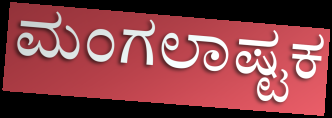
ಮಂಗಲಾಷ್ಟಕ